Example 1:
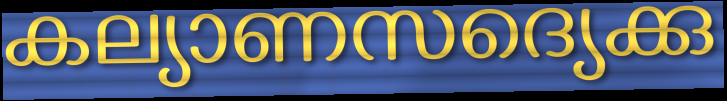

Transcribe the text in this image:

കല്യാണസദ്യെക്കു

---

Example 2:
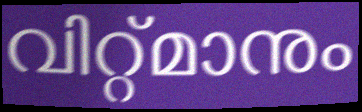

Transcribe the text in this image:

വിറ്റ്മാനും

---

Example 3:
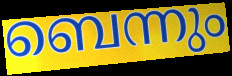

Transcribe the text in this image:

ബെന്നും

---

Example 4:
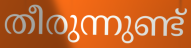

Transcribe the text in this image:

തീരുന്നുണ്ട്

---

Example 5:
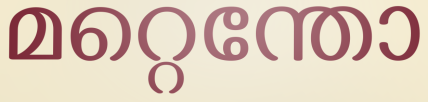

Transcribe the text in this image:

മറ്റെന്തോ